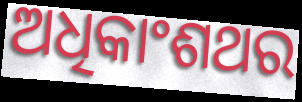
ଅଧିକାଂଶଥର